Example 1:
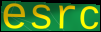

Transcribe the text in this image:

esrc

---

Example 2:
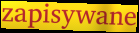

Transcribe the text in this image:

zapisywane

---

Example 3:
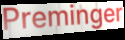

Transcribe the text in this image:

Preminger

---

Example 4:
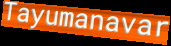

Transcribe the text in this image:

Tayumanavar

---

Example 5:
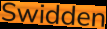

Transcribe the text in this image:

Swidden